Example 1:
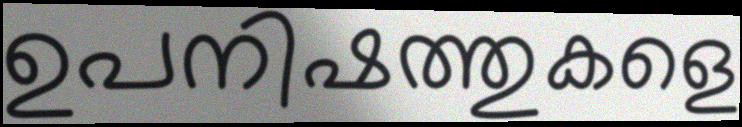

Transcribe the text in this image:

ഉപനിഷത്തുകളെ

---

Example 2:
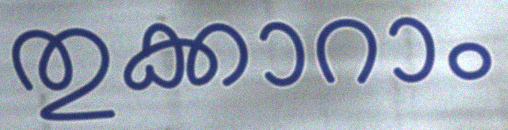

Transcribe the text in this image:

തുക്കാറാം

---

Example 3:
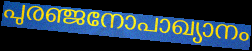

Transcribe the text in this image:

പുരഞ്ജനോപാഖ്യാനം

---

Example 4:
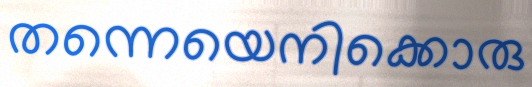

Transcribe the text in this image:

തന്നെയെനിക്കൊരു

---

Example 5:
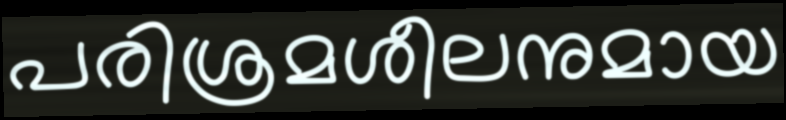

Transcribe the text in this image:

പരിശ്രമശീലനുമായ